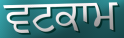
ਵਟਕਾਮ